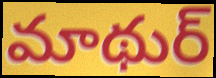
మాథుర్